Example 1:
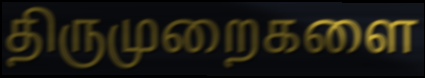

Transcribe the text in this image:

திருமுறைகளை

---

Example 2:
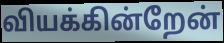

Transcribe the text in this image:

வியக்கின்றேன்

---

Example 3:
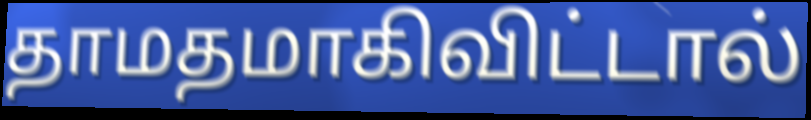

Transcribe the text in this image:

தாமதமாகிவிட்டால்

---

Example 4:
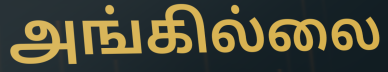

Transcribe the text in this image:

அங்கில்லை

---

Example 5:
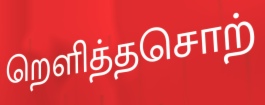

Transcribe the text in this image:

றெளித்தசொற்